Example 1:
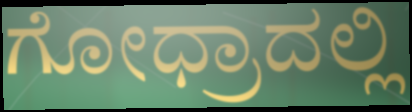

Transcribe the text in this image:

ಗೋಧ್ರಾದಲ್ಲಿ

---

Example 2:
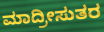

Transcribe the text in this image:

ಮಾದ್ರೀಸುತರ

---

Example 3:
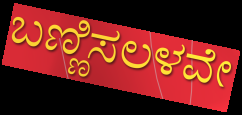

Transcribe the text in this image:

ಬಣ್ಣಿಸಲಳವೇ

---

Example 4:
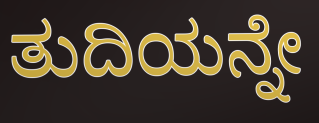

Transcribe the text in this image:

ತುದಿಯನ್ನೇ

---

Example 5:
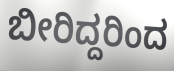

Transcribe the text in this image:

ಬೀರಿದ್ದರಿಂದ